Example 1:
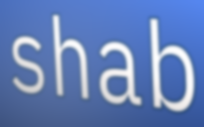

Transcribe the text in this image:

shab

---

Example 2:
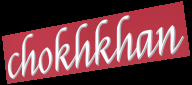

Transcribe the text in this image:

chokhkhan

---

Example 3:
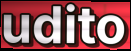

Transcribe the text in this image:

udito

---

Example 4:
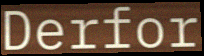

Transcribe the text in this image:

Derfor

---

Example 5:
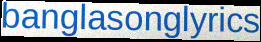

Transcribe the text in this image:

banglasonglyrics